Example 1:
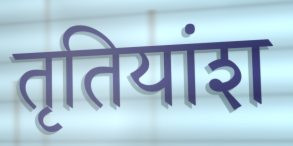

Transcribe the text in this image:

तृतियांश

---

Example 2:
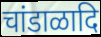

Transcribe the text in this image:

चांडाळादि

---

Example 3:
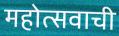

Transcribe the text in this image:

महोत्सवाची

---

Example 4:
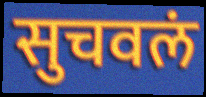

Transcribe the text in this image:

सुचवलं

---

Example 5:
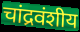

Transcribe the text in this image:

चांद्रवंशीय